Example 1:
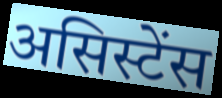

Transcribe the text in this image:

असिस्टेंस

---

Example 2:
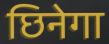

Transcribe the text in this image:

छिनेगा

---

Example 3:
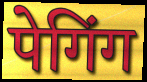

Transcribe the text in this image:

पेगिंग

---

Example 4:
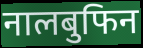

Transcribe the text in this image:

नालबुफिन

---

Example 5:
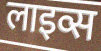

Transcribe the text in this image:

लाइव्स